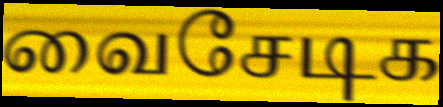
வைசேடிக